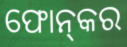
ଫୋନ୍‌କର